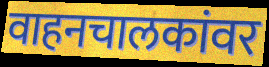
वाहनचालकांवर